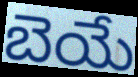
బెయే